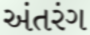
અંતરંગ